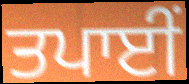
ਤਪਾਈਂ